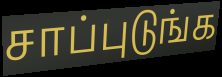
சாப்புடுங்க